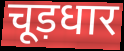
चूड़धार